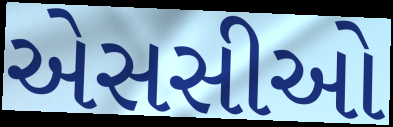
એસસીઓ